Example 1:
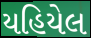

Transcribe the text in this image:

યહિયેલ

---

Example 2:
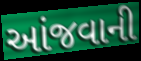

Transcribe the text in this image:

આંજવાની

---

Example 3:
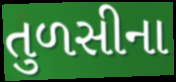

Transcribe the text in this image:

તુળસીના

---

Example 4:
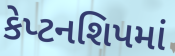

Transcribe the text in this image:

કેપ્ટનશિપમાં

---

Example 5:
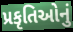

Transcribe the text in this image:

પ્રકૃતિઓનું